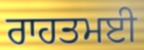
ਰਾਹਤਮਈ